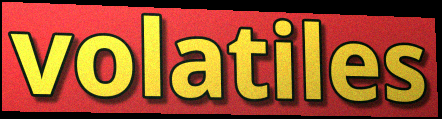
volatiles